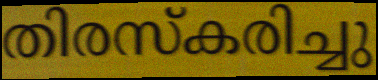
തിരസ്കരിച്ചു